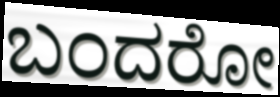
ಬಂದರೋ